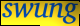
swung